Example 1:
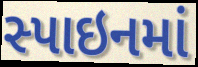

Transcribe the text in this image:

સ્પાઇનમાં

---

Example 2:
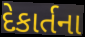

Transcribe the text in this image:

દેકાર્તના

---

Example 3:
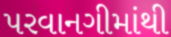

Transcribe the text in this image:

પરવાનગીમાંથી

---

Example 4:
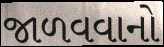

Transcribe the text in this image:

જાળવવાનો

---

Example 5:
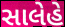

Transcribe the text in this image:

સાલેહે